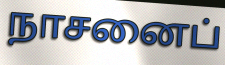
நாசனைப்